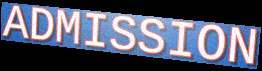
ADMISSION